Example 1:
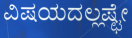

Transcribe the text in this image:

ವಿಷಯದಲ್ಲಷ್ಟೇ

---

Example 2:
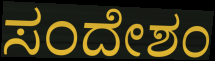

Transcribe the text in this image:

ಸಂದೇಶಂ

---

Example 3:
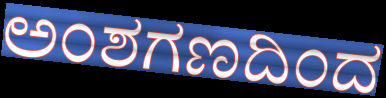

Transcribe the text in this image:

ಅಂಶಗಣದಿಂದ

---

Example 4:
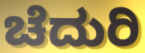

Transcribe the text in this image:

ಚೆದುರಿ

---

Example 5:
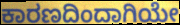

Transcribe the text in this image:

ಕಾರಣದಿಂದಾಗಿಯೇ